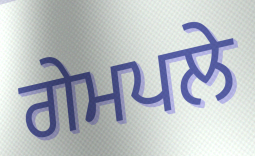
ਗੇਮਪਲੇ